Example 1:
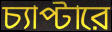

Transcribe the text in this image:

চ্যাপ্টারে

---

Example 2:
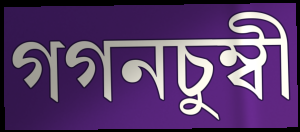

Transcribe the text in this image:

গগনচুম্বী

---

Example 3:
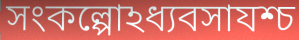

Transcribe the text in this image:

সংকল্পোঽধ্যবসাযশ্চ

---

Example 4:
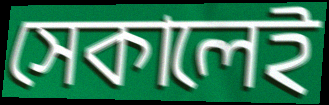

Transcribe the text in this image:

সেকালেই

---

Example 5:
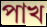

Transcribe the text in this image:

পাখ